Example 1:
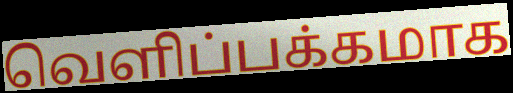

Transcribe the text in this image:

வெளிப்பக்கமாக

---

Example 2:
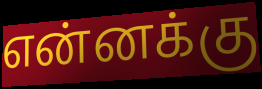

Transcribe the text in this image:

என்னக்கு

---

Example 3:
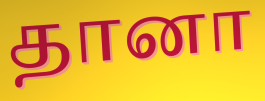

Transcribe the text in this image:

தானா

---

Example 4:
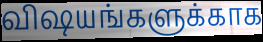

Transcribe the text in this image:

விஷயங்களுக்காக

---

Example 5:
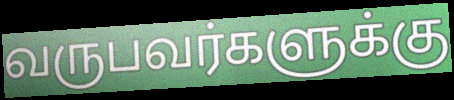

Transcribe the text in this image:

வருபவர்களுக்கு